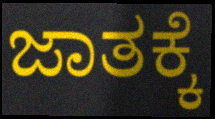
ಜಾತಕ್ಕೆ